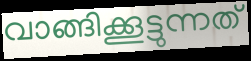
വാങ്ങിക്കൂട്ടുന്നത്